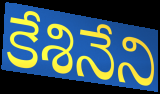
కేశినేని